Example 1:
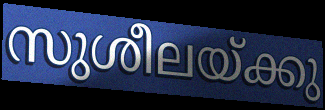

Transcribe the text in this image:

സുശീലയ്ക്കു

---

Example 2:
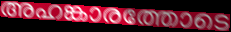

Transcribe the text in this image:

അഹങ്കാരത്തോടെ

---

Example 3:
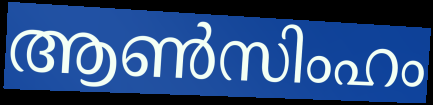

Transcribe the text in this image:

ആൺസിംഹം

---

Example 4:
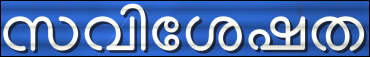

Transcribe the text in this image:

സവിശേഷത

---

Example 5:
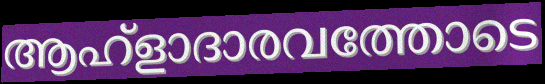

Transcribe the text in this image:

ആഹ്ളാദാരവത്തോടെ